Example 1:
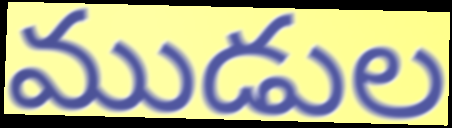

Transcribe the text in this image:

ముడుల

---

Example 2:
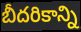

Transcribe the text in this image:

బీదరికాన్ని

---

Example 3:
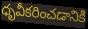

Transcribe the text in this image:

ధృవీకరించడానికి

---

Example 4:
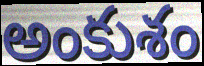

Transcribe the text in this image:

అంకుశం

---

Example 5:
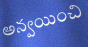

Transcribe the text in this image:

అన్వయించి